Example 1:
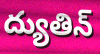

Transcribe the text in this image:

ద్యుతిన్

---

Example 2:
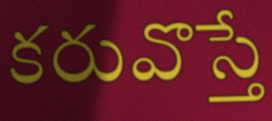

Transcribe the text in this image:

కరువొస్తే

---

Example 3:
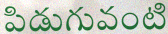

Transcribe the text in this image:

పిడుగువంటి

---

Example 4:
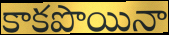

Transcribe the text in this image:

కాకపొయినా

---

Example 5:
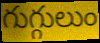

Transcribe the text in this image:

గుగ్గులుం